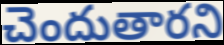
చెందుతారని